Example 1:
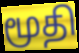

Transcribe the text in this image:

மூதி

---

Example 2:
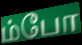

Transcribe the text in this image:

ம்போ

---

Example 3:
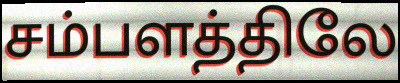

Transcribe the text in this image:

சம்பளத்திலே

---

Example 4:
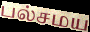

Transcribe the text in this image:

பல்சமய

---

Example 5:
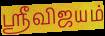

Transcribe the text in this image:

ஸ்ரீவிஜயம்